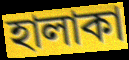
হালাকা